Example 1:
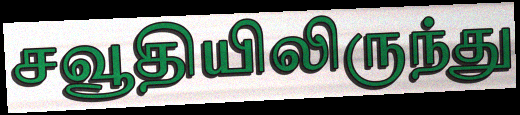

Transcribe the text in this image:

சவூதியிலிருந்து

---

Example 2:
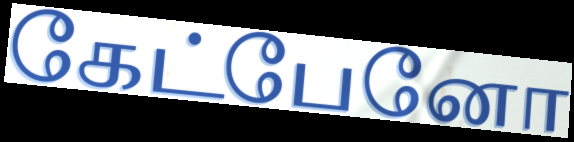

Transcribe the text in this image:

கேட்பேனோ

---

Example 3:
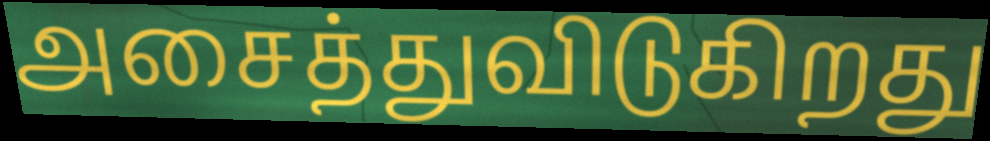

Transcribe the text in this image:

அசைத்துவிடுகிறது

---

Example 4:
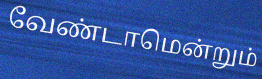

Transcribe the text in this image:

வேண்டாமென்றும்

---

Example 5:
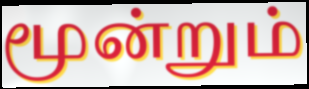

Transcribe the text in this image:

மூன்றும்